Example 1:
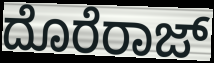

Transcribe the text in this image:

ದೊರೆರಾಜ್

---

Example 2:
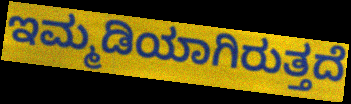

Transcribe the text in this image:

ಇಮ್ಮಡಿಯಾಗಿರುತ್ತದೆ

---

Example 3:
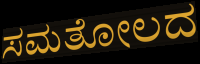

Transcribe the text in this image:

ಸಮತೋಲದ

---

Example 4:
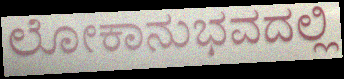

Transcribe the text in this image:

ಲೋಕಾನುಭವದಲ್ಲಿ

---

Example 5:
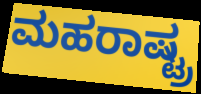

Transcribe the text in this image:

ಮಹರಾಷ್ಟ್ರ